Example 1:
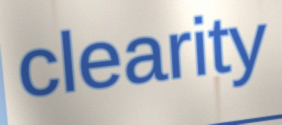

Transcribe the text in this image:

clearity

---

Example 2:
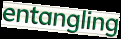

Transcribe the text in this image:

entangling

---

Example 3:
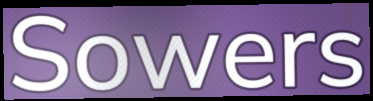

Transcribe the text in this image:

Sowers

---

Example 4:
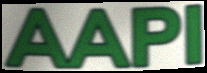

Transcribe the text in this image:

AAPI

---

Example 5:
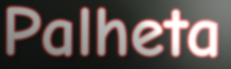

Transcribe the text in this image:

Palheta